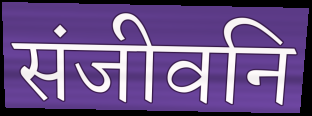
संजीवनि